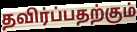
தவிர்ப்பதற்கும்